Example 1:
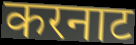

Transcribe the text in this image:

करनाट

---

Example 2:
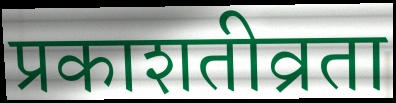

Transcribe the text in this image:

प्रकाशतीव्रता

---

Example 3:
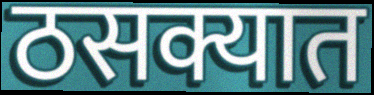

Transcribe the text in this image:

ठसक्यात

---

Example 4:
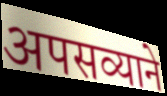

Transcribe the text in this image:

अपसव्याने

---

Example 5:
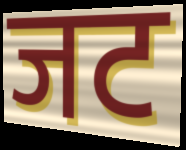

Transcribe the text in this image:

जट